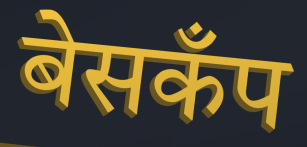
बेसकँप